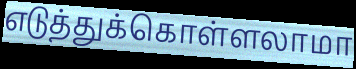
எடுத்துக்கொள்ளலாமா